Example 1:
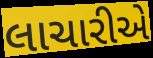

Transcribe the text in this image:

લાચારીએ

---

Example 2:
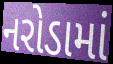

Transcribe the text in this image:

નરોડામાં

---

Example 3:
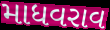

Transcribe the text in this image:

માધવરાવ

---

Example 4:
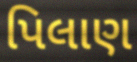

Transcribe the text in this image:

પિલાણ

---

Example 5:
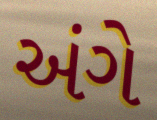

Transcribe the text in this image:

અંગે